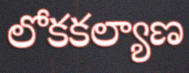
లోకకల్యాణ